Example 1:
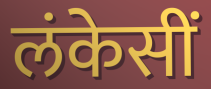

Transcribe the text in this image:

लंकेसीं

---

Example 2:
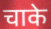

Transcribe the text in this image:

चाके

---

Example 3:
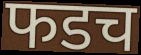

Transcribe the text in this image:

फडच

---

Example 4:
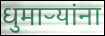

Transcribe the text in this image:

धुमाऱ्यांना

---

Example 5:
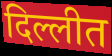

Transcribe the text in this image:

दिल्लीत